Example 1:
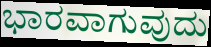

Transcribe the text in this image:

ಭಾರವಾಗುವುದು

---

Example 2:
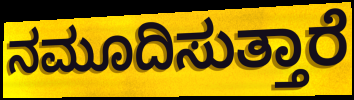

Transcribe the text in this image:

ನಮೂದಿಸುತ್ತಾರೆ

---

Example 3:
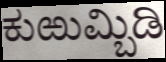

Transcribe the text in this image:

ಕುಱುಮ್ಬಿಡಿ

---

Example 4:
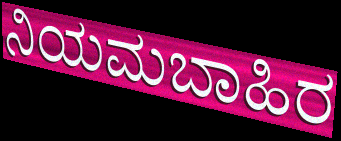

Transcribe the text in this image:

ನಿಯಮಬಾಹಿರ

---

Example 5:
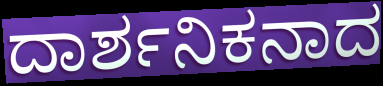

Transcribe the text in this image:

ದಾರ್ಶನಿಕನಾದ